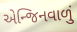
એન્જિનવાળું